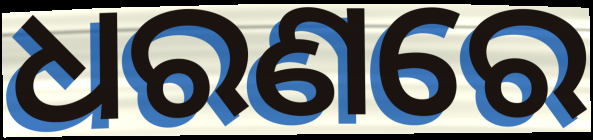
ଧରଣରେ